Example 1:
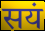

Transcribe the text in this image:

सयं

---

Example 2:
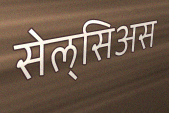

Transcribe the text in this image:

सेल्सिअस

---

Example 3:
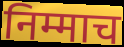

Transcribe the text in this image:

निम्माच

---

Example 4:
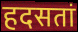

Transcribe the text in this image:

हदसतां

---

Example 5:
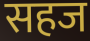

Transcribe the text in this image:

सहज